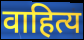
वाहित्य